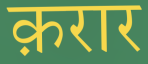
क़रार